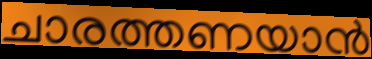
ചാരത്തണയാൻ